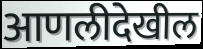
आणलीदेखील